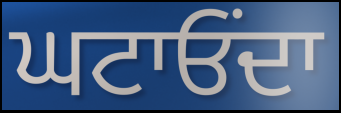
ਘਟਾਓਂਦਾ